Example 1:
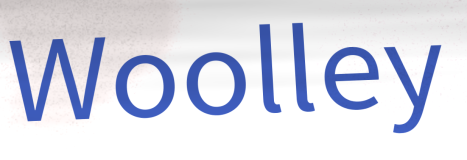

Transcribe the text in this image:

Woolley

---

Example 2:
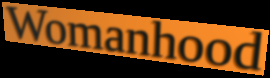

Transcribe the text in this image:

Womanhood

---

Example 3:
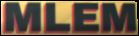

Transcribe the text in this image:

MLEM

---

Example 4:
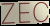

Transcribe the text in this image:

ZEC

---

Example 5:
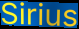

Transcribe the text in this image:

Sirius